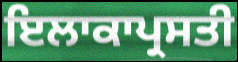
ਇਲਾਕਾਪ੍ਰਸਤੀ